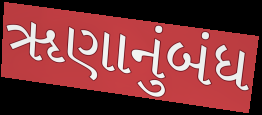
ૠણાનુંબંધ